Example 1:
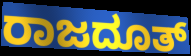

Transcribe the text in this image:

ರಾಜದೂತ್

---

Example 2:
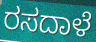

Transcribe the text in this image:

ರಸದಾಳೆ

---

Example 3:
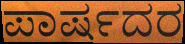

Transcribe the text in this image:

ಪಾರ್ಷದರ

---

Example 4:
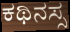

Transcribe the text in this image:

ಕಥಿನಸ್ಸ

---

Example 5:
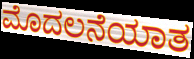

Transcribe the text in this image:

ಮೊದಲನೆಯಾತ